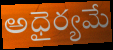
అధైర్యమే